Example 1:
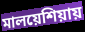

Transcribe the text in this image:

মালয়েশিয়ায়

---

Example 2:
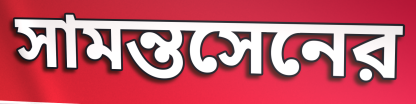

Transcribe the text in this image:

সামন্তসেনের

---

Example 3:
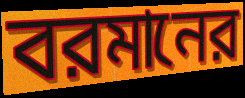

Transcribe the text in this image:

বরমানের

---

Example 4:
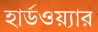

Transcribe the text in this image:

হার্ডওয়্যার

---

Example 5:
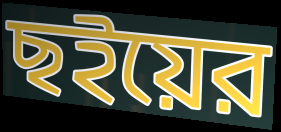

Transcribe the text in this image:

ছইয়ের